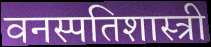
वनस्पतिशास्त्री